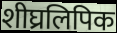
शीघ्रलिपिक